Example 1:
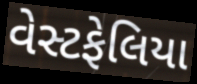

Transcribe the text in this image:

વેસ્ટફેલિયા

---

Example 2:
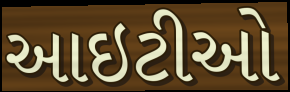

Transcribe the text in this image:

આઇટીઓ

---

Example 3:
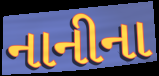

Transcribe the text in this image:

નાનીના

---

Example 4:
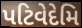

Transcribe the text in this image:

પટિવેદેમિ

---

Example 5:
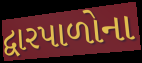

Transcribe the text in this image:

દ્વારપાળોના